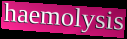
haemolysis